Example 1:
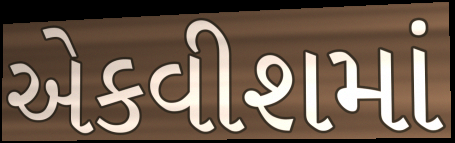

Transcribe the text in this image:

એકવીશમાં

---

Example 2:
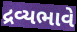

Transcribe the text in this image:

દ્રવ્યભાવે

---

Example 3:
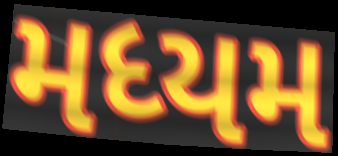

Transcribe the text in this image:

મધ્યમ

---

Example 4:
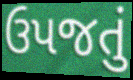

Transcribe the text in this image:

ઉપજતું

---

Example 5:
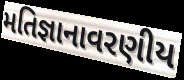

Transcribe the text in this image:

મતિજ્ઞાનાવરણીય